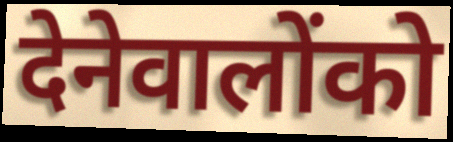
देनेवालोंको